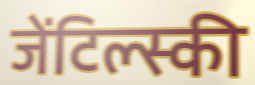
जेंटिल्स्की